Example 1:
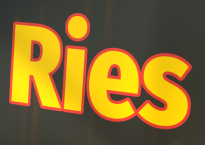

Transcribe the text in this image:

Ries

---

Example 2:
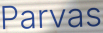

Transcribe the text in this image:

Parvas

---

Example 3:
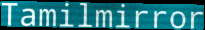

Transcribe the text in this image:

Tamilmirror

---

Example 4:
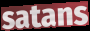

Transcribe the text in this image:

satans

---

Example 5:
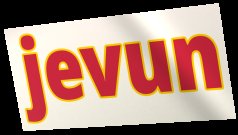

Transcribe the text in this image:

jevun